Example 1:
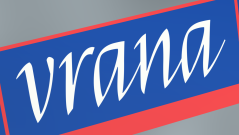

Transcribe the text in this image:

vrana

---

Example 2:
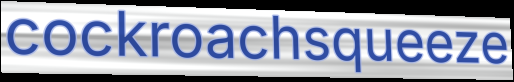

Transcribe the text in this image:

cockroachsqueeze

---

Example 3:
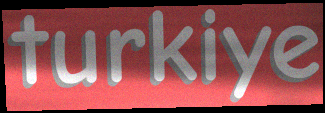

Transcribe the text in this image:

turkiye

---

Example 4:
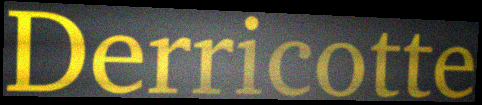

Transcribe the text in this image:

Derricotte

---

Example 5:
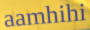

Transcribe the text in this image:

aamhihi